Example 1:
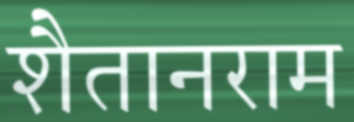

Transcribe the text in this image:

शैतानराम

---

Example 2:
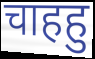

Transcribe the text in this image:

चाहहु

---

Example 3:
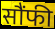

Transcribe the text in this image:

सौंफी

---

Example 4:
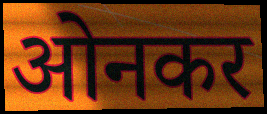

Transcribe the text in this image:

ओनकर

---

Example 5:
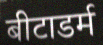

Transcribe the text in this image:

बीटाडर्म